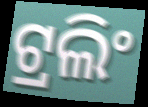
ଟ୍ରଲିଂ